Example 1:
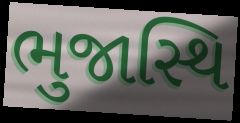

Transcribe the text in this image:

ભુજાસ્થિ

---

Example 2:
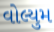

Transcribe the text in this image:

વોલ્યુમ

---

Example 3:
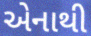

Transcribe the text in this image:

એનાથી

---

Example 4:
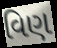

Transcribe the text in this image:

વિણ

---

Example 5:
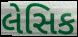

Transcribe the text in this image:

લેસિક